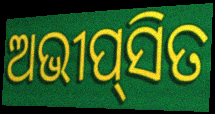
ଅଭୀପ୍‌ସିତ